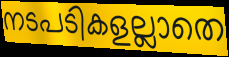
നടപടികളല്ലാതെ